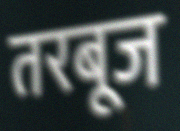
तरबूज